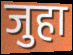
जुहा